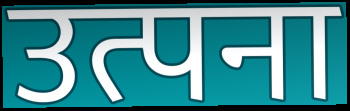
उत्पना